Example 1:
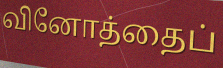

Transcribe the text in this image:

வினோத்தைப்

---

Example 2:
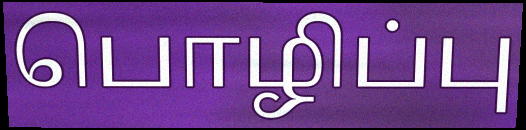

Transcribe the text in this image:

பொழிப்பு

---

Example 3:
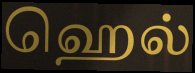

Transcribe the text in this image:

ஹெல்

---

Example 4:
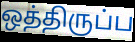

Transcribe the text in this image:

ஒத்திருப்ப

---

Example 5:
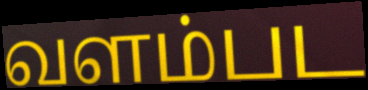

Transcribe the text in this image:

வளம்பட